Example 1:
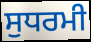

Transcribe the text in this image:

ਸੁਧਰਮੀ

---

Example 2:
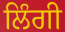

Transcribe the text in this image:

ਲਿੰਗੀ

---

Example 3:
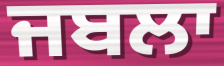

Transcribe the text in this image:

ਜਬਲਾ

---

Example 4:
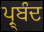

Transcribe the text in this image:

ਪ੍ਰ੍ਬੰਦ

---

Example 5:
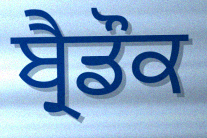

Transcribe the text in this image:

ਬ੍ਰੈਡੌਕ